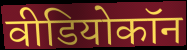
वीडियोकॉन